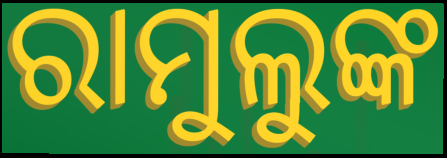
ରାମୁଲୁଙ୍କ